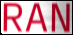
RAN